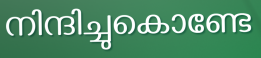
നിന്ദിച്ചുകൊണ്ടേ